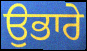
ਉਭਾਰੇ